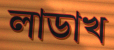
লাডাখ